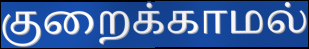
குறைக்காமல்